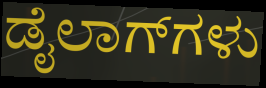
ಡೈಲಾಗ್‌ಗಳು